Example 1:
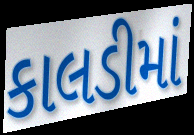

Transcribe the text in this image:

કાલડીમાં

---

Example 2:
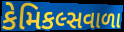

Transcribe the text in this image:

કેમિકલ્સવાળા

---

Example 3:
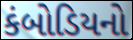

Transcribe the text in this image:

કંબોડિયનો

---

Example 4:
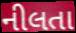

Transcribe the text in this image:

નીલતા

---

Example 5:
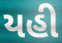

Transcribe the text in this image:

યહી